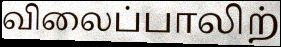
விலைப்பாலிற்